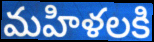
మహిళలకి